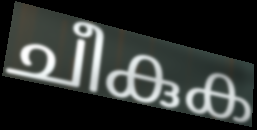
ചീകുക